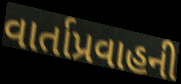
વાર્તાપ્રવાહની